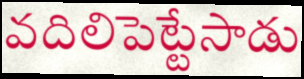
వదిలిపెట్టేసాడు